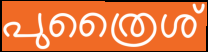
പുത്രൈശ്